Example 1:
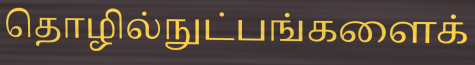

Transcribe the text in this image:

தொழில்நுட்பங்களைக்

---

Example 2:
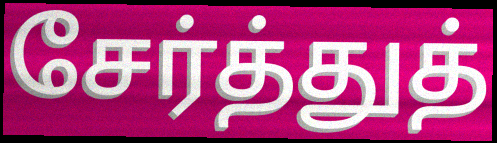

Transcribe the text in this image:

சேர்த்துத்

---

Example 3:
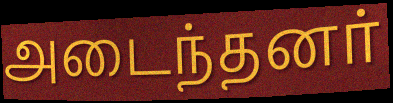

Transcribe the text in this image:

அடைந்தனர்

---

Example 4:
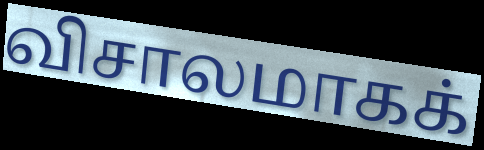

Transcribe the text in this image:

விசாலமாகக்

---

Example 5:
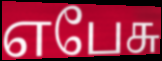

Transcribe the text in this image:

எபேசு